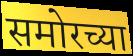
समोरच्या